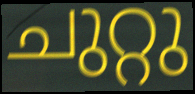
ചുറ്റു